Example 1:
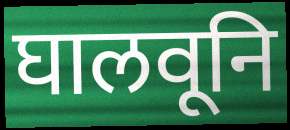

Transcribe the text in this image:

घालवूनि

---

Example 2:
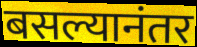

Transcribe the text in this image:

बसल्यानंतर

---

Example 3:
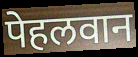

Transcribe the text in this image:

पेहलवान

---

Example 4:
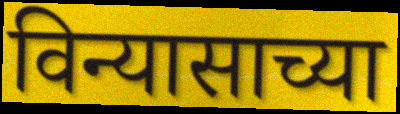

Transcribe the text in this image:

विन्यासाच्या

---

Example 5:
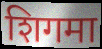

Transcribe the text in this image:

शिगमा